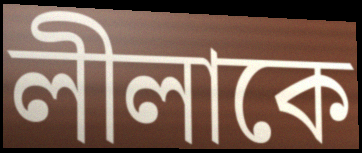
লীলাকে